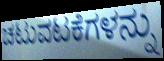
ಚಟುವಟಕೆಗಳನ್ನು